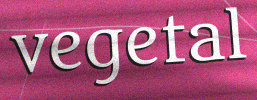
vegetal